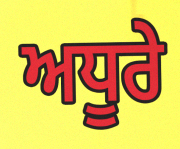
ਅਧੂਰੇ